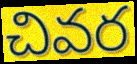
చివర